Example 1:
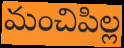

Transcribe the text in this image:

మంచిపిల్ల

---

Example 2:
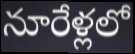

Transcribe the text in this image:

నూరేళ్లలో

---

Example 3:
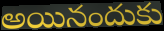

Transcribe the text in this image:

అయినందుకు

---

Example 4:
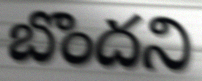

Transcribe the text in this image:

బొందని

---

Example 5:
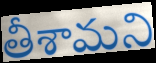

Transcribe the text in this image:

తీశామని